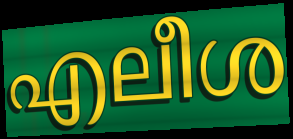
എലീശ